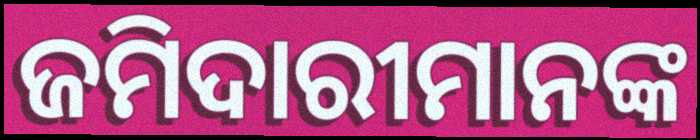
ଜମିଦାରୀମାନଙ୍କ